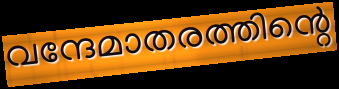
വന്ദേമാതരത്തിന്റെ